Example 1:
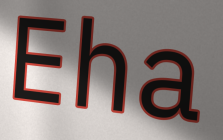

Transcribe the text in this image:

Eha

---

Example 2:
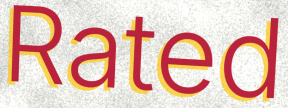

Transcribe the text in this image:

Rated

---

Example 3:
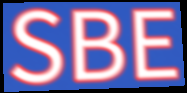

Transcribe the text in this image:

SBE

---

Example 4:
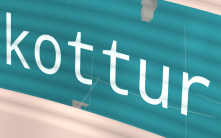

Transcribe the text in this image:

kottur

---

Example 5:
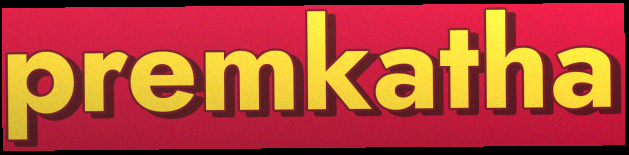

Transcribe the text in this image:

premkatha